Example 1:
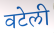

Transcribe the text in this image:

वटेली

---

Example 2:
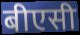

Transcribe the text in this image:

बीएसी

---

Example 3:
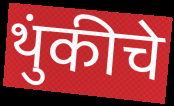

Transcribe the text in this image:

थुंकीचे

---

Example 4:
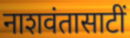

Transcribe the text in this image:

नाशवंतासाटीं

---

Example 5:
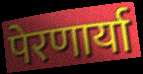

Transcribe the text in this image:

पेरणार्या